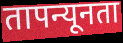
तापन्यूनता